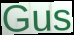
Gus